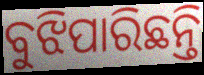
ବୁଝିପାରିଛନ୍ତି